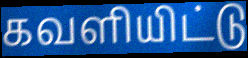
கவளியிட்டு